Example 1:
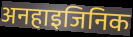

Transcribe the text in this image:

अनहाइजिनिक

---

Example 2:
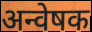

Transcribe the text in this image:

अन्वेषक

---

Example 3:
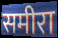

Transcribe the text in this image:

समीरा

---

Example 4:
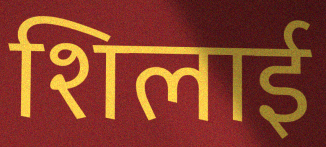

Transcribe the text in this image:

शिलाई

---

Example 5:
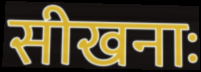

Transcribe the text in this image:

सीखनाः